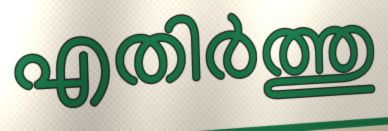
എതിർത്തു